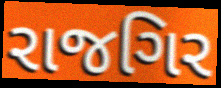
રાજગિર